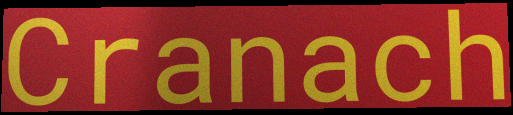
Cranach